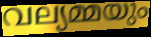
വല്യമ്മയും